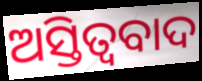
ଅସ୍ତିତ୍ବବାଦ